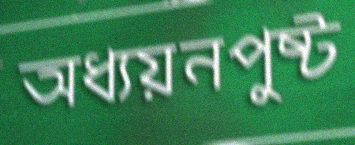
অধ্যয়নপুষ্ট